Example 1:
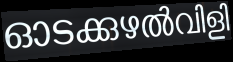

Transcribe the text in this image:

ഓടക്കുഴൽവിളി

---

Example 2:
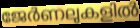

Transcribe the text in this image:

ജേർണലുകളിൽ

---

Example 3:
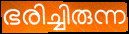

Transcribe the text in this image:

ഭരിച്ചിരുന്ന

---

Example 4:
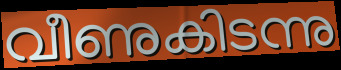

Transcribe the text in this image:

വീണുകിടന്നു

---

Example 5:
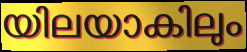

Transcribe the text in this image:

യിലയാകിലും